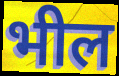
भील